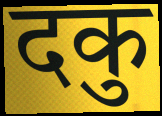
दकु